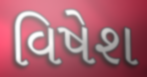
વિષેશ